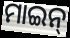
ମାଇନ୍